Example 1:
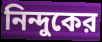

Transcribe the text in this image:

নিন্দুকের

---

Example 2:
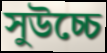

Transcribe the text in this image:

সুউচ্চে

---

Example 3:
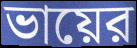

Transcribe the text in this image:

ভায়ের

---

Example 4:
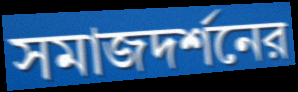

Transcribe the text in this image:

সমাজদর্শনের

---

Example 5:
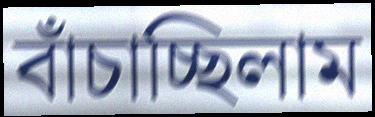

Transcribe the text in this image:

বাঁচাচ্ছিলাম